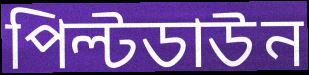
পিল্টডাউন